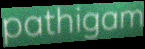
pathigam